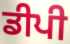
ਡੀਪੀ